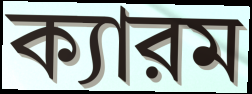
ক্যারম